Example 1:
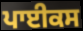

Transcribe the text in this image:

ਪਾਈਕਸ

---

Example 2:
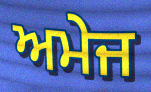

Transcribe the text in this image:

ਅਮੇਜ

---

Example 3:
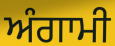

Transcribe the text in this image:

ਅੰਗਾਮੀ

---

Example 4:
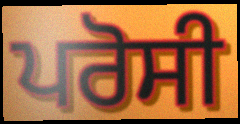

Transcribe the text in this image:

ਪਰੋਸੀ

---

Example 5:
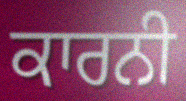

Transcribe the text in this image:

ਕਾਰਨੀ